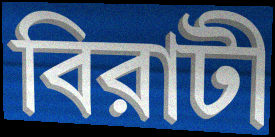
বিরাটী